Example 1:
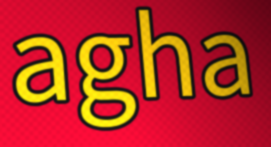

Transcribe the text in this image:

agha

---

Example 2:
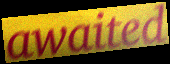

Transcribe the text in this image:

awaited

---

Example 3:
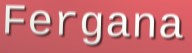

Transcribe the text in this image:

Fergana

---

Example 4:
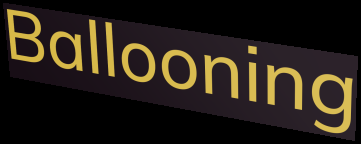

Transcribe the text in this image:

Ballooning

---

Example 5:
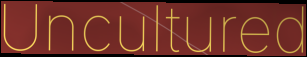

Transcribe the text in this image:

Uncultured